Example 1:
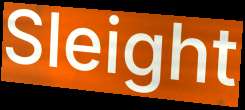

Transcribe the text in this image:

Sleight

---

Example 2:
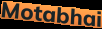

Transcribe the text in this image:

Motabhai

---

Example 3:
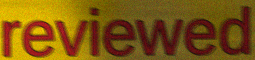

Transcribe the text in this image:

reviewed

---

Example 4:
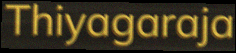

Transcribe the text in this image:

Thiyagaraja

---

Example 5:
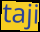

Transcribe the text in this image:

taji